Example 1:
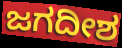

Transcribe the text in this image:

ಜಗದೀಶ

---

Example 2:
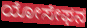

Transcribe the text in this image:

ಯೋಸೇಫನ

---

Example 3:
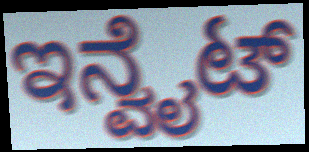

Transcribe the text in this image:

ಇನ್ವೈಟ್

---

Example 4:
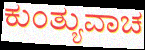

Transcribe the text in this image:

ಕುಂತ್ಯುವಾಚ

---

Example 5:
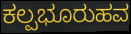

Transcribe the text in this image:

ಕಲ್ಪಭೂರುಹವ